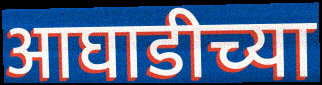
आघाडीच्या